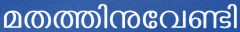
മതത്തിനുവേണ്ടി